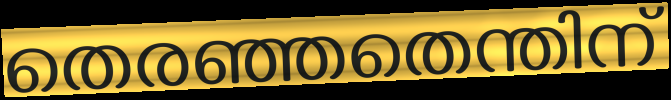
തെരഞ്ഞതെന്തിന്